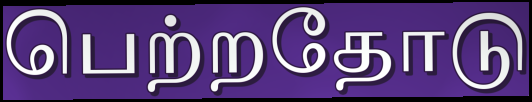
பெற்றதோடு